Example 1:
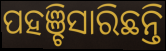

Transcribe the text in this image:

ପହଞ୍ଚିସାରିଛନ୍ତି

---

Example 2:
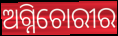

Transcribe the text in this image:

ଅଗ୍ନିଚୋରୀର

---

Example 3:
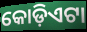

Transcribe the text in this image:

କୋଡ଼ିଏଟା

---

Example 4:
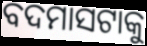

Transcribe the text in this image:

ବଦମାସଟାକୁ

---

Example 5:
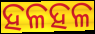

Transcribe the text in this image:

ହଳହଳ